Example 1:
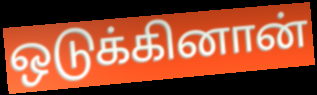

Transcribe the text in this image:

ஒடுக்கினான்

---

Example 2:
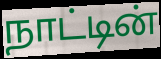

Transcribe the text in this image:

நாட்டின்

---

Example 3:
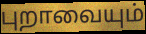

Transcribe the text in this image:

புறாவையும்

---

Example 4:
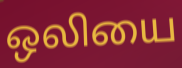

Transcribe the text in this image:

ஒலியை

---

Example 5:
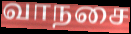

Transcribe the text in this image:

வாநசை